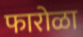
फारोळा